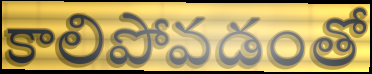
కాలిపోవడంతో